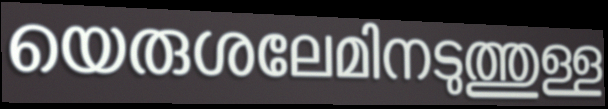
യെരുശലേമിനടുത്തുള്ള